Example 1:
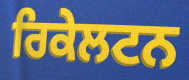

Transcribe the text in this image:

ਰਿਕੇਲਟਨ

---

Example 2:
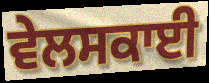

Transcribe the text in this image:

ਵੇਲਸਕਾਈ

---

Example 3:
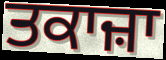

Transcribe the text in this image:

ਤਕਾਜ਼ਾ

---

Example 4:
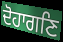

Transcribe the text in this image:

ਦੋਹਾਗਣਿ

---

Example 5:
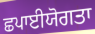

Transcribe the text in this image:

ਛਪਾਈਯੋਗਤਾ